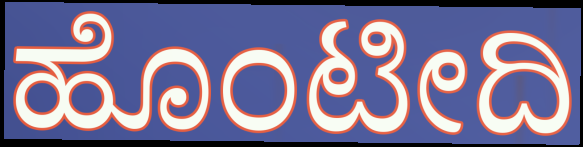
ಹೊಂಟೀದಿ